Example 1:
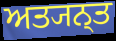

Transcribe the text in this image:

ਅਤ੍ਯਨ੍ਤ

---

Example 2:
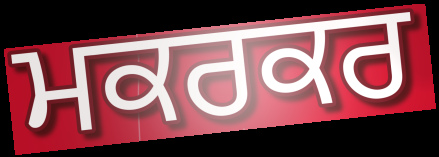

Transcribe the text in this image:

ਮਕਰਕਰ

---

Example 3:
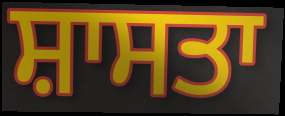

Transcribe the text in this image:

ਸ਼ਾਸਤਾ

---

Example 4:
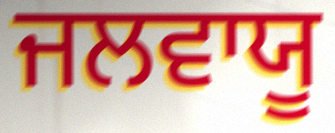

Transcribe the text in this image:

ਜਲਵਾਯੂ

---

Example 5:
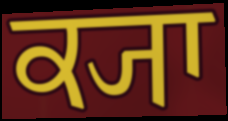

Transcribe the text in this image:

ਕ੍ਯਾ